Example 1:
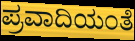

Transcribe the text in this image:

ಪ್ರವಾದಿಯಂತೆ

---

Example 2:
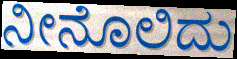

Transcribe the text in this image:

ನೀನೊಲಿದು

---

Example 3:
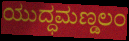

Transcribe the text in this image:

ಯುದ್ಧಮಣ್ಡಲಂ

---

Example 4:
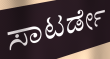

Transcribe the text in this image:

ಸಾಟರ್ಡೇ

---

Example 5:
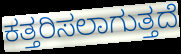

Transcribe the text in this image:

ಕತ್ತರಿಸಲಾಗುತ್ತದೆ